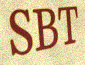
SBT